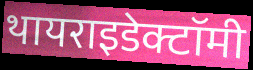
थायराइडेक्टॉमी